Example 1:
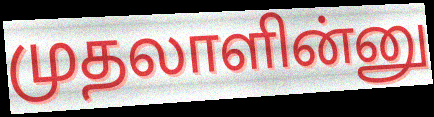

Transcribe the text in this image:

முதலாளின்னு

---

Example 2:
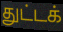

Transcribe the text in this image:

துட்டக்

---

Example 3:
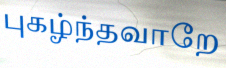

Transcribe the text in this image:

புகழ்ந்தவாறே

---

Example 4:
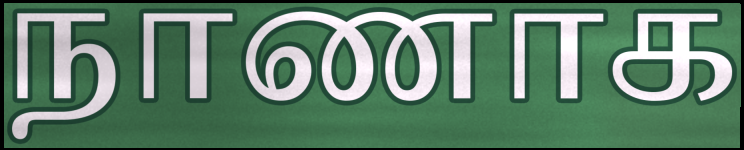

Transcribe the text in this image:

நாணாக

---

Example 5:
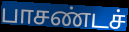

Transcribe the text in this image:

பாசண்டச்